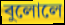
বুলোলে